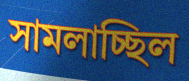
সামলাচ্ছিল